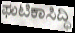
ಘುಟಿಕಾಸಿದ್ಧಿ